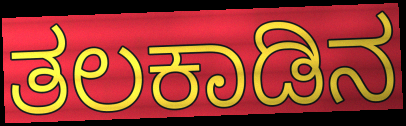
ತಲಕಾಡಿನ